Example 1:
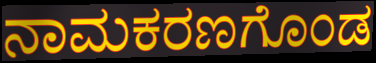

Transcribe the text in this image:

ನಾಮಕರಣಗೊಂಡ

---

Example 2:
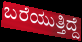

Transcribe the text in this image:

ಬರೆಯುತ್ತಿದ್ದೆ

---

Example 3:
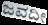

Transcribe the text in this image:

ಜವದೀ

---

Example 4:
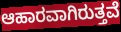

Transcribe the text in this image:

ಆಹಾರವಾಗಿರುತ್ತವೆ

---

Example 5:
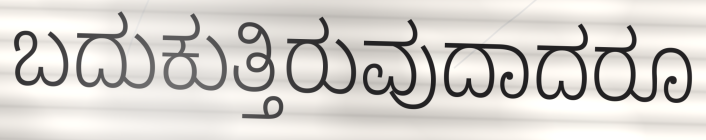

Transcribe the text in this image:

ಬದುಕುತ್ತಿರುವುದಾದರೂ